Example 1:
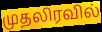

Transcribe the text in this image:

முதலிரவில்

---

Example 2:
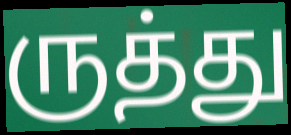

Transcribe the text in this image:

ருத்து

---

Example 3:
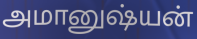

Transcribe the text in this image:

அமானுஷ்யன்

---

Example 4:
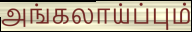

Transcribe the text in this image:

அங்கலாய்ப்பும்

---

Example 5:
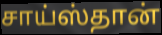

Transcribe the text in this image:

சாய்ஸ்தான்